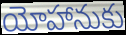
యోహానుకు